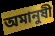
অমানুষী